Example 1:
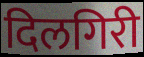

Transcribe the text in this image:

दिलगिरी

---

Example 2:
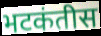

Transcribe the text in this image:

भटकंतीस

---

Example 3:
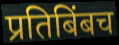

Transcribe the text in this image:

प्रतिबिंबच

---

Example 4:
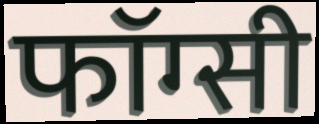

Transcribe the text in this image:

फॉग्सी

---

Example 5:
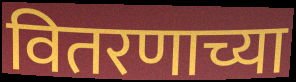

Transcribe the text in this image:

वितरणाच्या